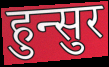
हुन्सुर